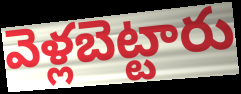
వెళ్లబెట్టారు